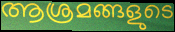
ആശ്രമങ്ങളുടെ